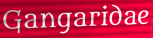
Gangaridae